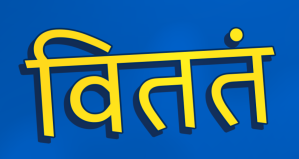
विततं